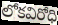
లోకవిరోధి